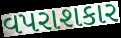
વપરાશકાર